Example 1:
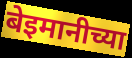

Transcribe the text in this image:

बेइमानीच्या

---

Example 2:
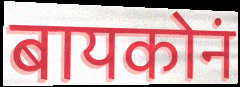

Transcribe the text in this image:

बायकोनं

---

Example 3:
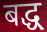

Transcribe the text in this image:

बद्ध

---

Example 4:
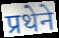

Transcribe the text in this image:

प्रथेने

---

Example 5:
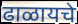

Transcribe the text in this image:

ढाळायचे